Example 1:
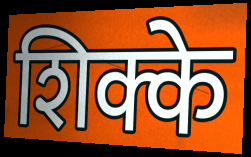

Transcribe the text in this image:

शिक्के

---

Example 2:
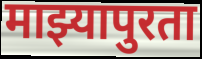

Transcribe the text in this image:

माझ्यापुरता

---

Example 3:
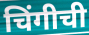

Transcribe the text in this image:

चिंगीची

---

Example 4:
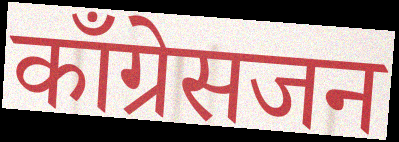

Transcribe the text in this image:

काँग्रेसजन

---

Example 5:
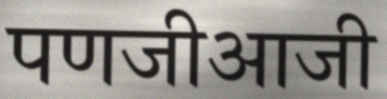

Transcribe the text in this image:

पणजीआजी